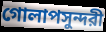
গোলাপসুন্দরী